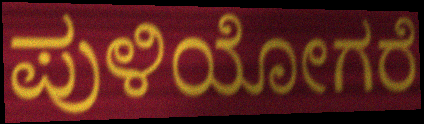
ಪುಳಿಯೋಗರೆ